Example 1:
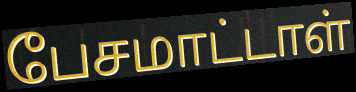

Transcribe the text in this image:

பேசமாட்டாள்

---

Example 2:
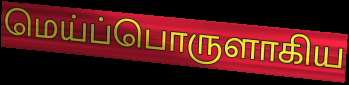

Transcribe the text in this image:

மெய்ப்பொருளாகிய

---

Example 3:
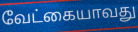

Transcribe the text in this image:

வேட்கையாவது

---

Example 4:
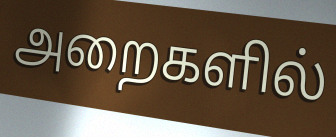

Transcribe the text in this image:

அறைகளில்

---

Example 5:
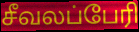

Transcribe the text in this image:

சீவலப்பேரி